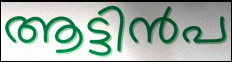
ആട്ടിൻപ